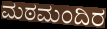
ಮಠಮಂದಿರ